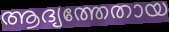
ആദ്യത്തേതായ